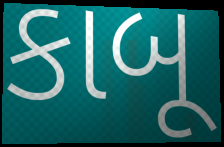
કાબૂ